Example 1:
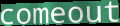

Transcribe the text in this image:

comeout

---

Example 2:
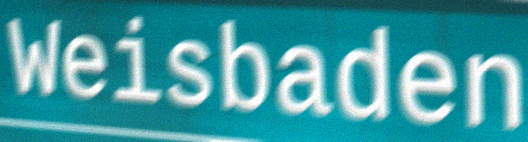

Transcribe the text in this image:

Weisbaden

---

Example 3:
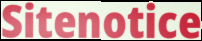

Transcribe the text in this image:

Sitenotice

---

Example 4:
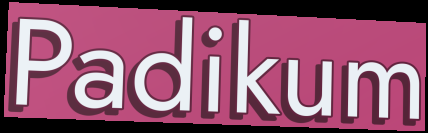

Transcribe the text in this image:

Padikum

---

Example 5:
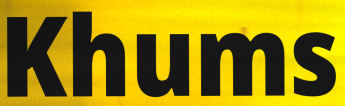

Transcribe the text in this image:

Khums